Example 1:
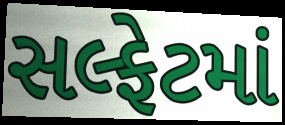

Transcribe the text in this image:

સલ્ફેટમાં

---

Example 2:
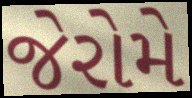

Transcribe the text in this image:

જેરોમે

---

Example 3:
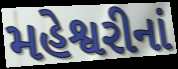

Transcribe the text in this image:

મહેશ્વરીનાં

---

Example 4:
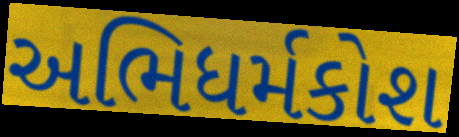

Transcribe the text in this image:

અભિધર્મકોશ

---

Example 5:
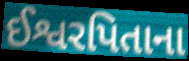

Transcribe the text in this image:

ઈશ્વરપિતાના